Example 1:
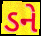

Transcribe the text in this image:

ડને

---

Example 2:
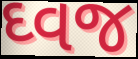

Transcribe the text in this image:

ઘ્વજ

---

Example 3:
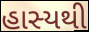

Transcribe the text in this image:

હાસ્યથી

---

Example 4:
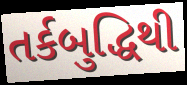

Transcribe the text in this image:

તર્કબુદ્ધિથી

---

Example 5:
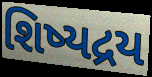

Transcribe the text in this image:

શિષ્યદ્રય